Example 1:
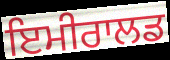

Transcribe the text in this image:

ਇਮੀਰਾਲਡ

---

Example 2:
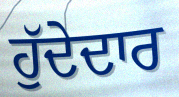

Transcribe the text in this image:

ਹੁੱਦੇਦਾਰ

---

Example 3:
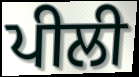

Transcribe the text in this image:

ਪੀਲੀ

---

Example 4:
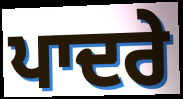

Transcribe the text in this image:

ਪਾਦਰੇ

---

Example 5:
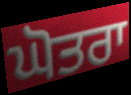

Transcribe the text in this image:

ਘੋਤਰਾ